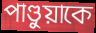
পাণ্ডুয়াকে